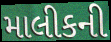
માલીકની